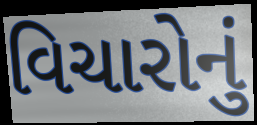
વિચારોનું